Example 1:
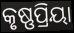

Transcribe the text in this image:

କୃଷ୍ଣପ୍ରିୟା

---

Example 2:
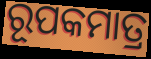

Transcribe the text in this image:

ରୂପକମାତ୍ର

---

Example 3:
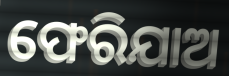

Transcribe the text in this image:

ଫେରିଯାଅ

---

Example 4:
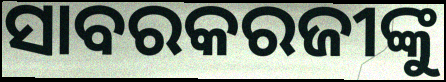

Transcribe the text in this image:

ସାବରକରଜୀଙ୍କୁ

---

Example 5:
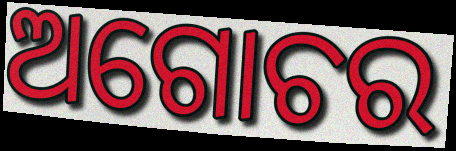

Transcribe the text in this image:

ଅଗୋଚର